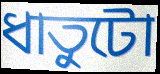
ধাতুটো